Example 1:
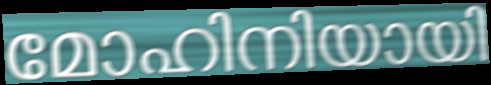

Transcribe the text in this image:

മോഹിനിയായി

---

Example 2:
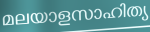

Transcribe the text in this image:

മലയാളസാഹിത്യ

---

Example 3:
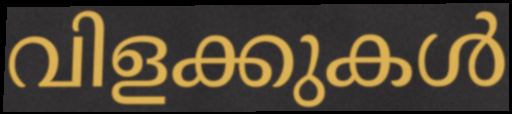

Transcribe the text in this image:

വിളക്കുകൾ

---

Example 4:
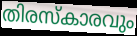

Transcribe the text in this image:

തിരസ്കാരവും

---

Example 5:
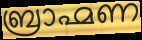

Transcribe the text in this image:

ബ്രാഹ്മണ